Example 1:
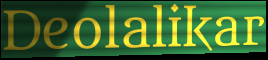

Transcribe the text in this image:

Deolalikar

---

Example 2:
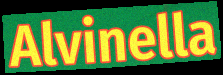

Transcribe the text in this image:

Alvinella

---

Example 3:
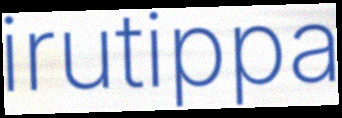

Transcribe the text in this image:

irutippa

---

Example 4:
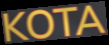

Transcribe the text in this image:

KOTA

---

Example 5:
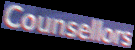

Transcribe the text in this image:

Counsellors